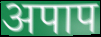
अपाप